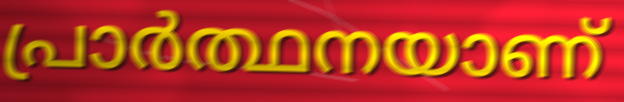
പ്രാർത്ഥനയാണ്